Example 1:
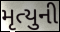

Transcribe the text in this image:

મૃત્યુની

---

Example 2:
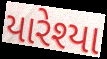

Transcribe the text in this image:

યારેશ્યા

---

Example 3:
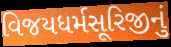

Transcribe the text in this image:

વિજયધર્મસૂરિજીનું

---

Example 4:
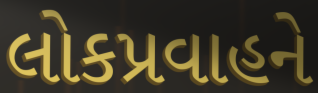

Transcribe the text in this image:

લોકપ્રવાહને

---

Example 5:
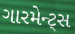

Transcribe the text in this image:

ગારમેન્ટ્સ